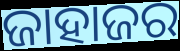
ଜାହାଜର